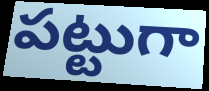
పట్టుగా